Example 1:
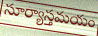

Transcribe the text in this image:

సూర్యాస్తమయం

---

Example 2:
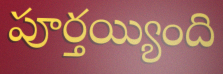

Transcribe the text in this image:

పూర్తయ్యింది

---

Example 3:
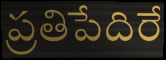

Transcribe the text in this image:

ప్రతిపేదిరే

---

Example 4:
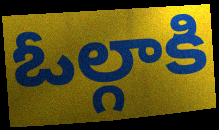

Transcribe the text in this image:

ఓల్గాకి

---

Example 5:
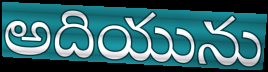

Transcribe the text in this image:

అదియును